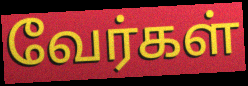
வேர்கள்